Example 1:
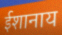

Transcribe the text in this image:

ईशानाय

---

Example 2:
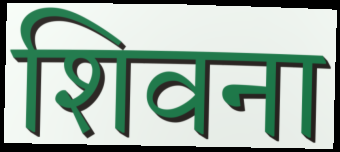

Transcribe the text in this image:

शिवना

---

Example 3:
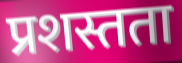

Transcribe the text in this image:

प्रशस्तता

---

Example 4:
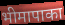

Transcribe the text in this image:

भीमापाका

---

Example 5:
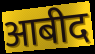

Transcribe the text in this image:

आबीद